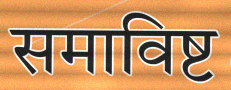
समाविष्ट